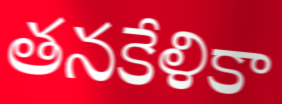
తనకేళికా